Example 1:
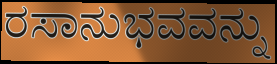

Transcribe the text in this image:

ರಸಾನುಭವವನ್ನು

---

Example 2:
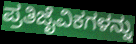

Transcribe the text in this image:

ಪ್ರತಿಜೈವಿಕಗಳನ್ನು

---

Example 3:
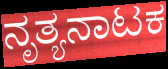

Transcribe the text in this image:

ನೃತ್ಯನಾಟಕ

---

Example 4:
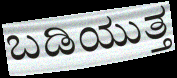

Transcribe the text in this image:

ಬಡಿಯುತ್ತ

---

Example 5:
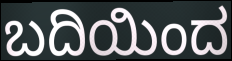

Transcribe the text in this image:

ಬದಿಯಿಂದ